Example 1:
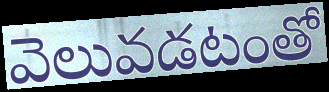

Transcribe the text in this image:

వెలువడటంతో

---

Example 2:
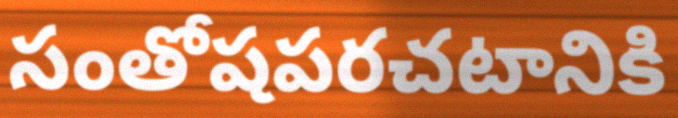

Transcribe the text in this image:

సంతోషపరచటానికి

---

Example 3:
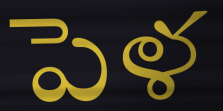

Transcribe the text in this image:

పెళ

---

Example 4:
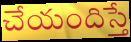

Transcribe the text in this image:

చేయందిస్తే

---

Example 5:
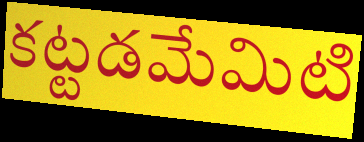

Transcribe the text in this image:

కట్టడమేమిటి